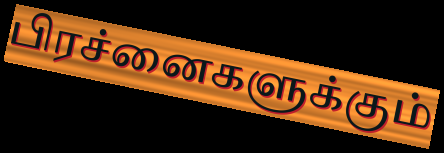
பிரச்னைகளுக்கும்